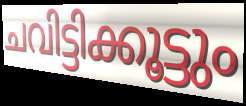
ചവിട്ടിക്കൂട്ടും